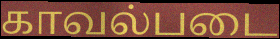
காவல்படை